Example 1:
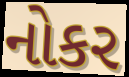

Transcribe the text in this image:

નોકર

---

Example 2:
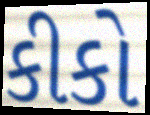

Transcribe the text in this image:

કીકો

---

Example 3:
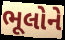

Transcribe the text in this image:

ભૂલોને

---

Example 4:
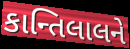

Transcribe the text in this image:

કાન્તિલાલને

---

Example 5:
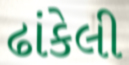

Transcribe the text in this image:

ઢાંકેલી